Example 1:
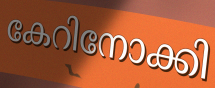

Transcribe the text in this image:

കേറിനോക്കി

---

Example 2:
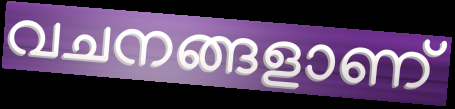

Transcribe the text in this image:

വചനങ്ങളാണ്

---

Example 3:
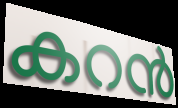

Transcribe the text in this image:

കറൻ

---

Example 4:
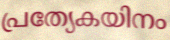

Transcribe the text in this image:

പ്രത്യേകയിനം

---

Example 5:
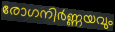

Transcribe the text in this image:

രോഗനിർണ്ണയവും